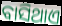
ବାସିଥାଏ